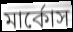
মার্কোস